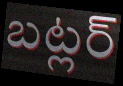
బట్లర్